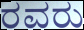
ರವರು